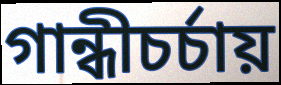
গান্ধীচর্চায়